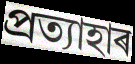
প্ৰত্যাহাৰ